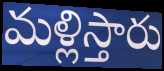
మళ్లిస్తారు